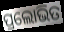
ପ୍ରଲୋଭିତ